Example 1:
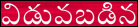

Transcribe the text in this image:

విడువబడిన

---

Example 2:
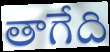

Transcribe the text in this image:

తాగేది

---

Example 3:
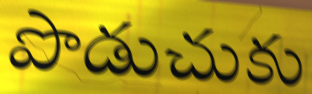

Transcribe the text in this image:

పొడుచుకు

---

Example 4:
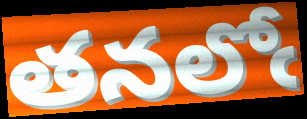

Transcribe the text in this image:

తనలోఁ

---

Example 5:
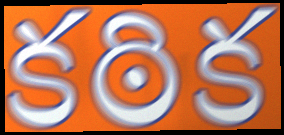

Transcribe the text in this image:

కఠిక